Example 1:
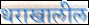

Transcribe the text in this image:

थराखालील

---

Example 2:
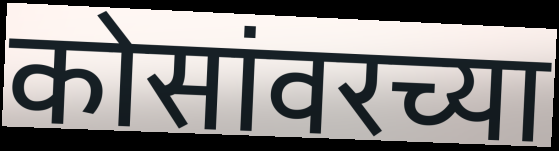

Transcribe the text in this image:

कोसांवरच्या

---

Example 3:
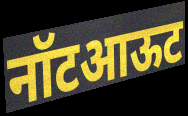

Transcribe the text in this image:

नॉटआऊट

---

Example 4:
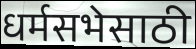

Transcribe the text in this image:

धर्मसभेसाठी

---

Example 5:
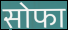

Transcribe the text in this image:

सोफा